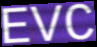
EVC